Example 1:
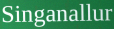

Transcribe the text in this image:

Singanallur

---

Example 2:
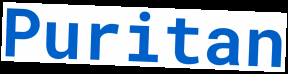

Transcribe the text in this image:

Puritan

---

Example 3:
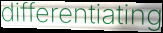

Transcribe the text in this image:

differentiating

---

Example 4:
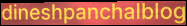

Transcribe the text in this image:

dineshpanchalblog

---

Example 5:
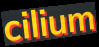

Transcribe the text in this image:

cilium